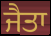
ਜੈਤਾ